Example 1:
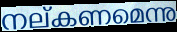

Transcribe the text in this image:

നല്‌കണമെന്നു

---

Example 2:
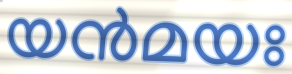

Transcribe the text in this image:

യൻമയഃ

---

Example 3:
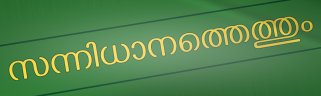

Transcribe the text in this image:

സന്നിധാനത്തെത്തും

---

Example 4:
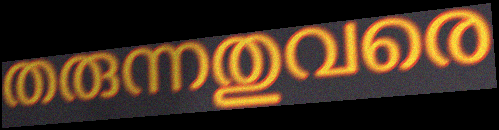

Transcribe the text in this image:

തരുന്നതുവരെ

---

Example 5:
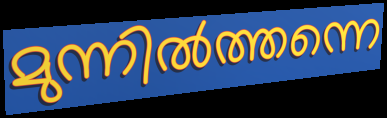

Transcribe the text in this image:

മുന്നിൽത്തന്നെ